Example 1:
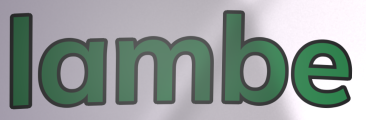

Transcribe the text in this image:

lambe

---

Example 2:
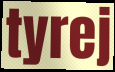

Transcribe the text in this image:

tyrej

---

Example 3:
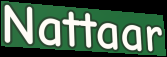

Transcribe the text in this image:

Nattaar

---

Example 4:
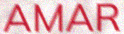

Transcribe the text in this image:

AMAR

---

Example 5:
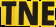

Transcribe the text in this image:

TNE